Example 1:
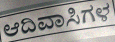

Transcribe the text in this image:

ಆದಿವಾಸಿಗಳ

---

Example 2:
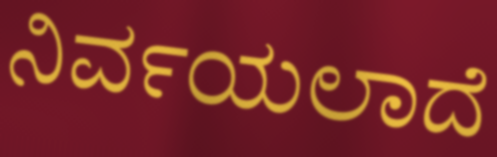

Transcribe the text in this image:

ನಿರ್ವಯಲಾದೆ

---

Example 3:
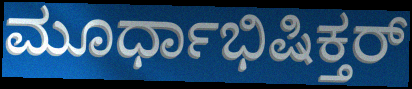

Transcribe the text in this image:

ಮೂರ್ಧಾಭಿಷಿಕ್ತರ್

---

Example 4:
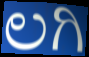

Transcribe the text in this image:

ಲಗಿ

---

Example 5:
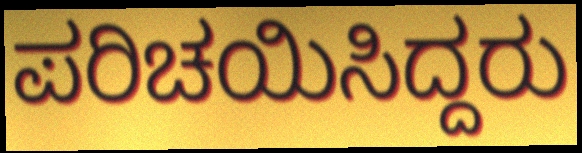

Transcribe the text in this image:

ಪರಿಚಯಿಸಿದ್ದರು